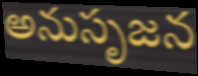
అనుసృజన